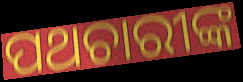
ପଥଚାରୀଙ୍କ